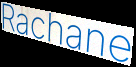
Rachane